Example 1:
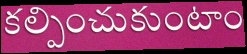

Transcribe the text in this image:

కల్పించుకుంటాం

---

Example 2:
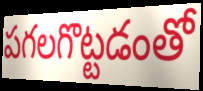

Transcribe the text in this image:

పగలగొట్టడంతో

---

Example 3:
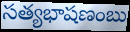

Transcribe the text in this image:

సత్యభాషణంబు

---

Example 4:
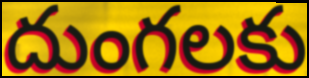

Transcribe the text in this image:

దుంగలకు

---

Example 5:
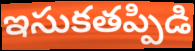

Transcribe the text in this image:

ఇసుకతప్పిడి